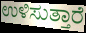
ಉಳಿಸುತ್ತಾರೆ